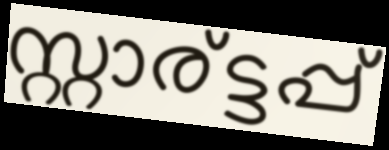
സ്റ്റാര്ട്ടപ്പ്